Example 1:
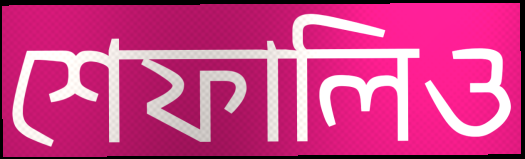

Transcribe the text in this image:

শেফালিও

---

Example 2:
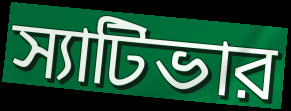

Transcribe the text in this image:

স্যাটিভার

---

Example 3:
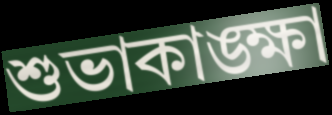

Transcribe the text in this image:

শুভাকাঙ্ক্ষা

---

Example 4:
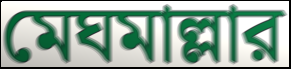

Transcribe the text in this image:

মেঘমাল্লার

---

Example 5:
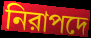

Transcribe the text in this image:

নিরাপদে